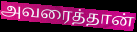
அவரைத்தான்